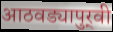
आठवड्यापुर्वी